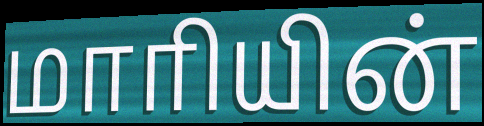
மாரியின்